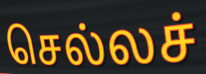
செல்லச்